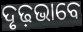
ଦୃଢ଼ଭାବେ